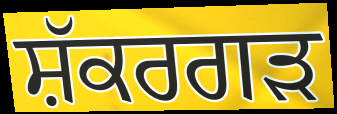
ਸ਼ੱਕਰਗੜ